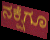
ನಕ್ಷೆಗೂ